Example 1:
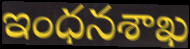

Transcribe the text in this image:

ఇంధనశాఖ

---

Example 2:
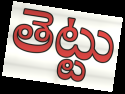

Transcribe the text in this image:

తెట్టు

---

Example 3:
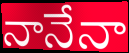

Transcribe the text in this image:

నానేనా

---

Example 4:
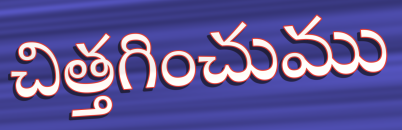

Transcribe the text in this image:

చిత్తగించుము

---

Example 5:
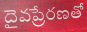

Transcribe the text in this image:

దైవప్రేరణతో